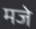
मजे